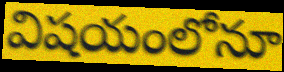
విషయంలోనూ